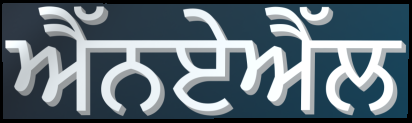
ਐੱਨਏਐੱਲ